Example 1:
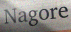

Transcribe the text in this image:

Nagore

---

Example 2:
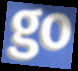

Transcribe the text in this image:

go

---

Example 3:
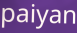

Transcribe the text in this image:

paiyan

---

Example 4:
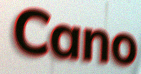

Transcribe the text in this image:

Cano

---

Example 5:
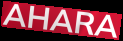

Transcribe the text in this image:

AHARA